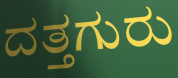
ದತ್ತಗುರು